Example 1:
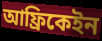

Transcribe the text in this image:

আফ্রিকেইন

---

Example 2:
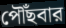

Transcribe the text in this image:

পৌঁছবার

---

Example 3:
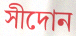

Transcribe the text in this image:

সীদোন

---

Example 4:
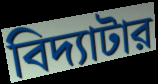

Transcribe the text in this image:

বিদ্যাটার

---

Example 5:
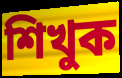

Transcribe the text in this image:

শিখুক